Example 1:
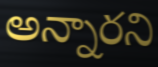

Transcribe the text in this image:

అన్నారని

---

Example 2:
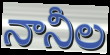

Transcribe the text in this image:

నానీల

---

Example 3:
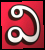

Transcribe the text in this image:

వి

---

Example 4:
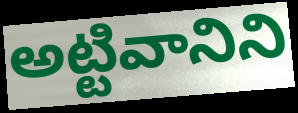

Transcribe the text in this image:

అట్టివానిని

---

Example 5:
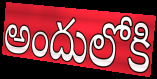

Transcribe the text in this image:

అందులోకి